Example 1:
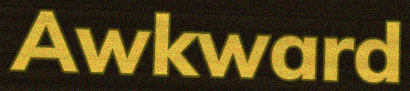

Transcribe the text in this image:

Awkward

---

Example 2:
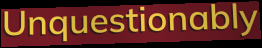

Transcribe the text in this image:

Unquestionably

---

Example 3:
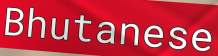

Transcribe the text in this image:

Bhutanese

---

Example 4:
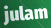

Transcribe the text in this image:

julam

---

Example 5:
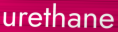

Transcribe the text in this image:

urethane